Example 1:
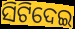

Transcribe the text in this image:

ସିଟିଦେଇ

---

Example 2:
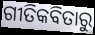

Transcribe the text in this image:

ଗୀତିକବିତାରୁ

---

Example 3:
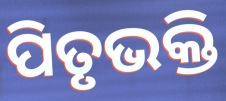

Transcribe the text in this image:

ପିତୃଭକ୍ତି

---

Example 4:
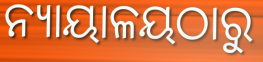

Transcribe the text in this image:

ନ୍ୟାୟାଳୟଠାରୁ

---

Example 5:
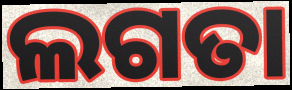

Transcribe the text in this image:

ଲଗତା